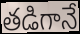
తడిగానే